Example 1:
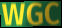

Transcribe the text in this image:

WGC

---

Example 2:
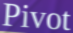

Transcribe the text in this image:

Pivot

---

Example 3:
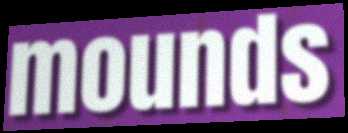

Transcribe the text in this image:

mounds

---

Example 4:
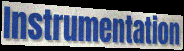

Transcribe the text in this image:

Instrumentation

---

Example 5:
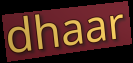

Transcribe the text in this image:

dhaar